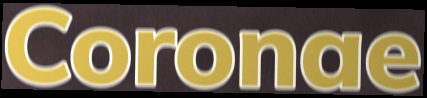
Coronae